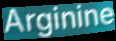
Arginine